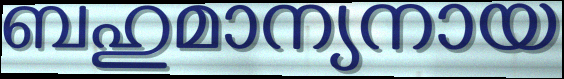
ബഹുമാന്യനായ